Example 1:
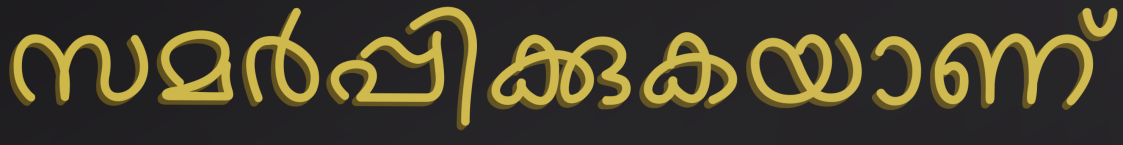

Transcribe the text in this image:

സമർപ്പിക്കുകയാണ്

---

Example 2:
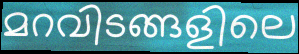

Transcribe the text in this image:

മറവിടങ്ങളിലെ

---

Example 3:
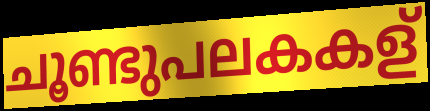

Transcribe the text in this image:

ചൂണ്ടുപലകകള്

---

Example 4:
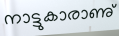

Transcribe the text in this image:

നാട്ടുകാരാണു്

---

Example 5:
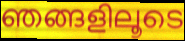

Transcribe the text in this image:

ഞങ്ങളിലൂടെ